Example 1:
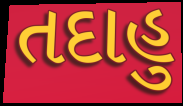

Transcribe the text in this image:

તદાહુ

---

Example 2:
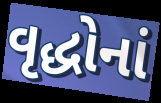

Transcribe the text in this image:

વૃદ્ધોનાં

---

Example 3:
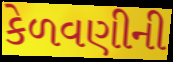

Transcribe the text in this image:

કેળવણીની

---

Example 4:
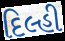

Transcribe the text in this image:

દિલ્હી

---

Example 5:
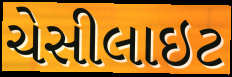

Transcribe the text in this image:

ચેસીલાઇટ